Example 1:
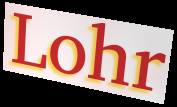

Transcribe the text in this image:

Lohr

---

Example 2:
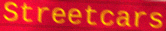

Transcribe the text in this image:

Streetcars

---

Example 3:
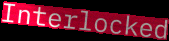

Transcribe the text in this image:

Interlocked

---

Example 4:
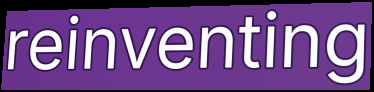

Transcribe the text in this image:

reinventing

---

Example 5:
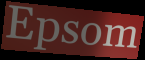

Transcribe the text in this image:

Epsom